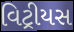
વિટ્રીયસ